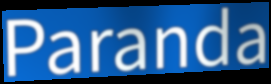
Paranda